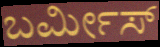
ಬರ್ಮೀಸ್